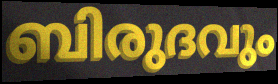
ബിരുദവും